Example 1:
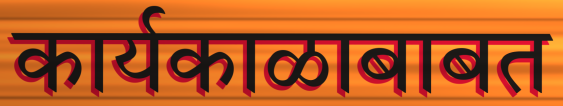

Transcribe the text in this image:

कार्यकाळाबाबत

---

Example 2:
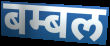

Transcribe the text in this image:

बम्बल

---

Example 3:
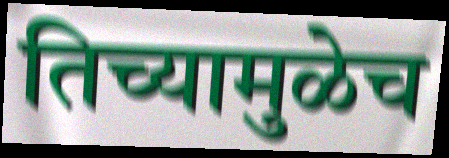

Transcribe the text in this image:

तिच्यामुळेच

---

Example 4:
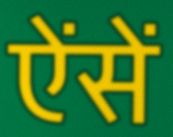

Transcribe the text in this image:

ऐंसें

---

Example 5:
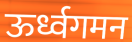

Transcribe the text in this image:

ऊर्ध्वगमन